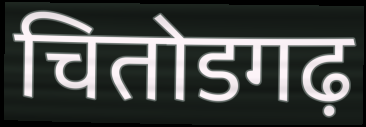
चितोडगढ़